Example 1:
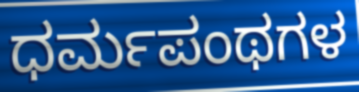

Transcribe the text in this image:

ಧರ್ಮಪಂಥಗಳ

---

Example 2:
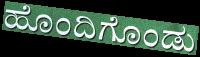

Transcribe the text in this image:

ಹೊಂದಿಗೊಂಡು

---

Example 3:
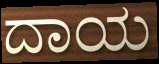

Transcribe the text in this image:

ದಾಯ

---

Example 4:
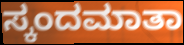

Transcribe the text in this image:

ಸ್ಕಂದಮಾತಾ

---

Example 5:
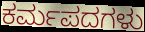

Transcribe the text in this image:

ಕರ್ಮಪದಗಳು